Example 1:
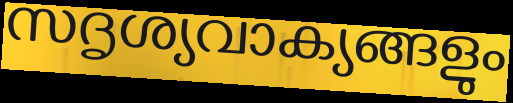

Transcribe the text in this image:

സദൃശ്യവാക്യങ്ങളും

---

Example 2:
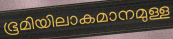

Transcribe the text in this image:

ഭൂമിയിലാകമാനമുള്ള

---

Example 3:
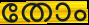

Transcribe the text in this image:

തോം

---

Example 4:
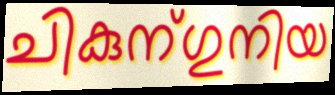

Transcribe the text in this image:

ചികുന്ഗുനിയ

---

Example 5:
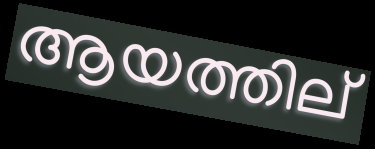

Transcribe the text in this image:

ആയത്തില്